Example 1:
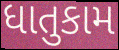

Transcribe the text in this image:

ધાતુકામ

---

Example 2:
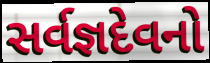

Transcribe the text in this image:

સર્વજ્ઞદેવનો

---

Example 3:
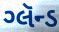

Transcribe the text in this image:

ગ્લૅન્ડ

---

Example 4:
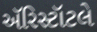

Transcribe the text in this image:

ઍરિસ્ટૉટલે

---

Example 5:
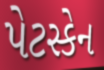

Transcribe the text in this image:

પેટસ્કેન